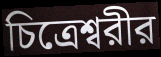
চিত্রেশ্বরীর